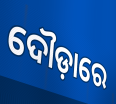
ଦୌଡ଼ାରେ